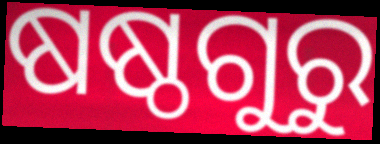
ଷଷ୍ଠଗୁରୁ